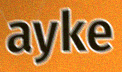
ayke